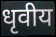
धृवीय